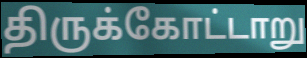
திருக்கோட்டாறு